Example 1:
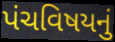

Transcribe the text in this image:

પંચવિષયનું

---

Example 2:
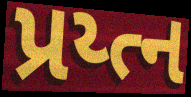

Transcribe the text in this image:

પ્રય્ત્ન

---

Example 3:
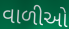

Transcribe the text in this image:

વાળીઓ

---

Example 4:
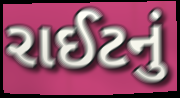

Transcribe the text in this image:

રાઈટનું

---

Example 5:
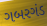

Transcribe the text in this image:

ગબરગંડ